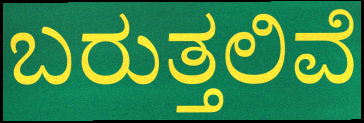
ಬರುತ್ತಲಿವೆ